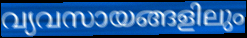
വ്യവസായങ്ങളിലും